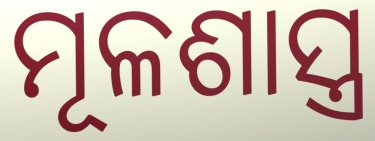
ମୂଳଶାସ୍ତ୍ର